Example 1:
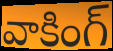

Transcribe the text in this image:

వాకింగ్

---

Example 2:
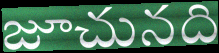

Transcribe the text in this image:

జూచునది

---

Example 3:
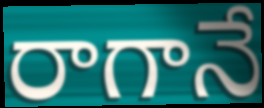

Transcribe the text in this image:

రాగానే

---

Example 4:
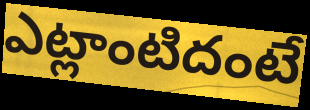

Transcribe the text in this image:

ఎట్లాంటిదంటే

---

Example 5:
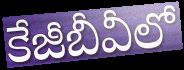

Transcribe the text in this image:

కేజీబీవీలో